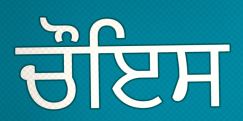
ਚੌਇਸ